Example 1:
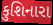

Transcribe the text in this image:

કુશિનારા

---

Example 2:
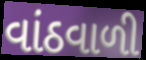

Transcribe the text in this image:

વાંઠવાળી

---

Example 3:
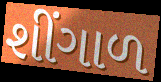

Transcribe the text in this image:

શીંગાળ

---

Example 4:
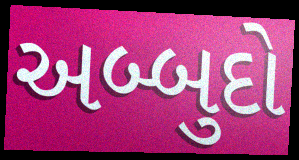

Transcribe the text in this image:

અબ્બુદો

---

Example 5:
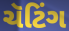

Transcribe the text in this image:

ચૅટિંગ